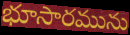
భూసారమును